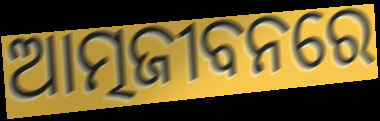
ଆତ୍ମଜୀବନରେ